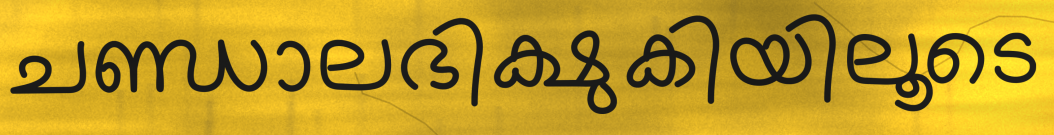
ചണ്ഡാലഭിക്ഷുകിയിലൂടെ